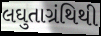
લઘુતાગ્રંથિથી